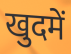
खुदमें